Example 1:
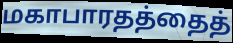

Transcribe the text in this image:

மகாபாரதத்தைத்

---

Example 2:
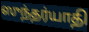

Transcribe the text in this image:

ஸுந்தர்யாதி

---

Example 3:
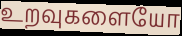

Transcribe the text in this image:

உறவுகளையோ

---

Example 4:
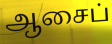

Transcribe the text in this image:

ஆசைப்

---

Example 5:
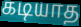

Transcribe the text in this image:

கடியாத